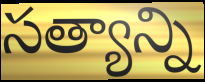
సత్యాన్ని